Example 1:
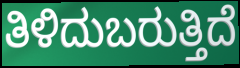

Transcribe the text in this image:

ತಿಳಿದುಬರುತ್ತಿದೆ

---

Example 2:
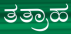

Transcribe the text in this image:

ತತ್ರಾಹ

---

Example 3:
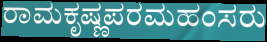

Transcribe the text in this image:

ರಾಮಕೃಷ್ಣಪರಮಹಂಸರು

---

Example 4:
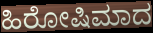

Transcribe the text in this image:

ಹಿರೋಷಿಮಾದ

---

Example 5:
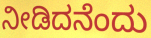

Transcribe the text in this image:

ನೀಡಿದನೆಂದು